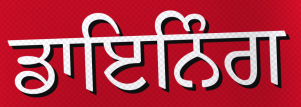
ਡਾਇਨਿੰਗ